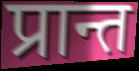
प्रान्त